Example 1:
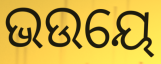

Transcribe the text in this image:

ଭଉୟେ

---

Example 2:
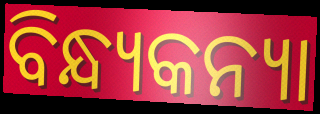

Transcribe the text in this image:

ବିନ୍ଧ୍ୟକନ୍ୟା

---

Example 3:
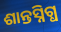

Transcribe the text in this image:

ଶାନ୍ତସ୍ନିଗ୍ଧ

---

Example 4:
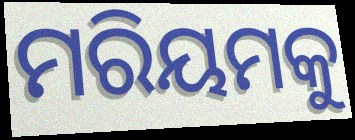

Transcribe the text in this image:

ମରିୟମକୁ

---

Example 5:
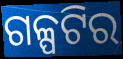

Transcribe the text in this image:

ଗଳ୍ପଟିର